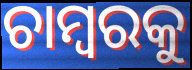
ଚାମ୍ବରକୁ